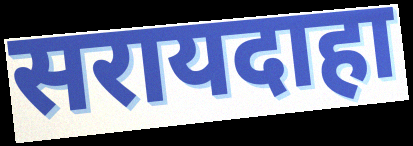
सरायदाहा